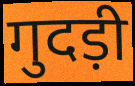
गुदड़ी